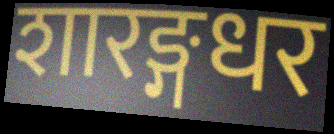
शारङ्गधर